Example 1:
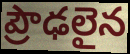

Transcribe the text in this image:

ప్రౌఢలైన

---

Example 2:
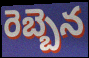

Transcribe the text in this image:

రెబ్బెన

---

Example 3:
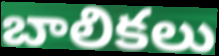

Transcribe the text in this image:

బాలికలు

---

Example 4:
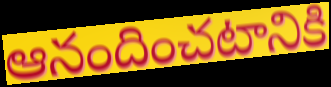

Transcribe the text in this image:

ఆనందించటానికి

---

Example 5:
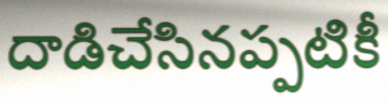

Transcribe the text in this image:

దాడిచేసినప్పటికీ